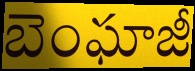
బెంఘాజీ